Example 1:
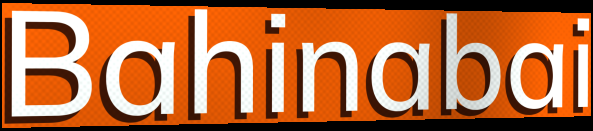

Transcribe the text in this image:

Bahinabai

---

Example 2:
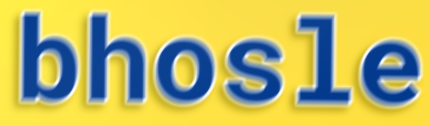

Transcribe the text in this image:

bhosle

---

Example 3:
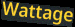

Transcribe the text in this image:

Wattage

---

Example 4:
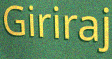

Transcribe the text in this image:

Giriraj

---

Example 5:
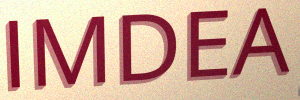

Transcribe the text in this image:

IMDEA